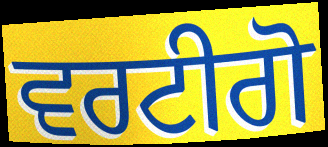
ਵਰਟੀਗੋ